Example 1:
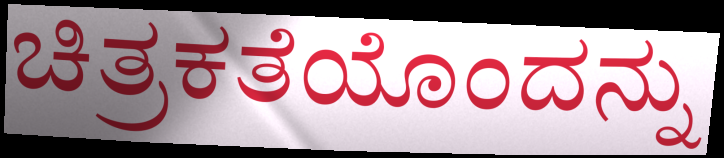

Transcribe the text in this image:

ಚಿತ್ರಕತೆಯೊಂದನ್ನು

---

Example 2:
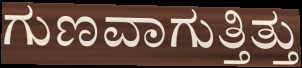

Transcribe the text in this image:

ಗುಣವಾಗುತ್ತಿತ್ತು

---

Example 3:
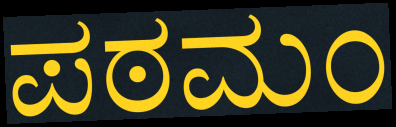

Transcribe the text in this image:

ಪಠಮಂ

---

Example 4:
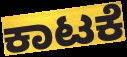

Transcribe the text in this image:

ಕಾಟಕೆ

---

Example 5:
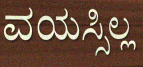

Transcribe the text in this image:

ವಯಸ್ಸಿಲ್ಲ